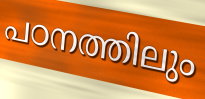
പഠനത്തിലും